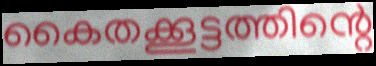
കൈതക്കൂട്ടത്തിന്റെ